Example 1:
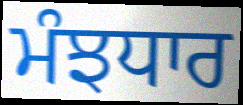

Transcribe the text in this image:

ਮੰਝਧਾਰ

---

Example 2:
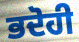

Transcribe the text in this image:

ਭਦੋਹੀ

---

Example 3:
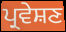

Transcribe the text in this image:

ਪ੍ਰਵੇਸ਼ਣ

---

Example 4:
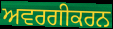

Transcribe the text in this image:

ਅਵਰਗੀਕਰਨ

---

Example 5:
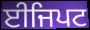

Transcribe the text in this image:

ਈਜਿਪਟ